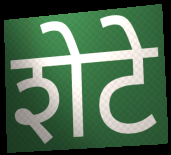
शेटे